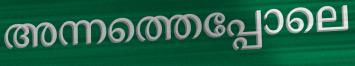
അന്നത്തെപ്പോലെ